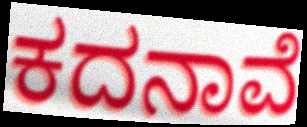
ಕದನಾವೆ